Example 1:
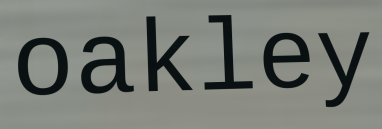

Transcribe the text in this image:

oakley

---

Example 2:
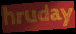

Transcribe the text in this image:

hruday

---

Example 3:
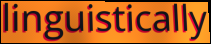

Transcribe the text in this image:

linguistically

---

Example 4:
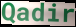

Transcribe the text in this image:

Qadir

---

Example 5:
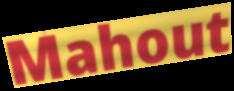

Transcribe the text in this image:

Mahout